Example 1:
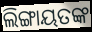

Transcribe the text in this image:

ଲିଙ୍ଗାୟତଙ୍କ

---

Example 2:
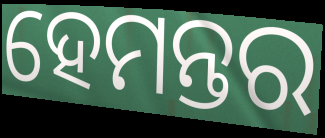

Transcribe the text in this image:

ହେମନ୍ତର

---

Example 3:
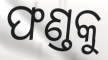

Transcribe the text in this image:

ଫଣ୍ଡକୁ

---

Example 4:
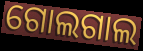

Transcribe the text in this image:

ଗୋଲଗାଲ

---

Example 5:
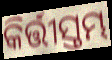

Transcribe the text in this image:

କିର୍ତ୍ତୀସ୍ତମ୍ଭ